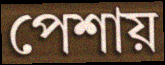
পেশায়